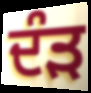
ਦੰੜ